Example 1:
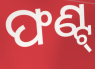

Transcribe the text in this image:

ଫଣ୍ଟ୍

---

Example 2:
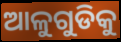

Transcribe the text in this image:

ଆଳୁଗୁଡିକୁ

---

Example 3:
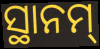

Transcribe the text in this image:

ସ୍ଥାନମ୍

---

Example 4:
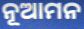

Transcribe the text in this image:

ନୂଆମନ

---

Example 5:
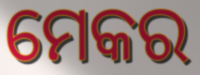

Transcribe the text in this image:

ମେକର